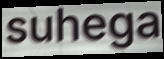
suhega